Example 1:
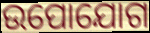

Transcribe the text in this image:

ଉପୋଯୋଗ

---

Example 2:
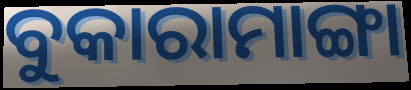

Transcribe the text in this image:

ବୁକାରାମାଙ୍ଗା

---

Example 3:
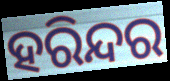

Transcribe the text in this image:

ହରିନ୍ଦର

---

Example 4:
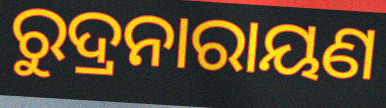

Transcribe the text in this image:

ରୁଦ୍ରନାରାୟଣ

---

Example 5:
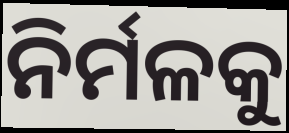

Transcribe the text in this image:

ନିର୍ମଳକୁ